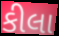
કીલા